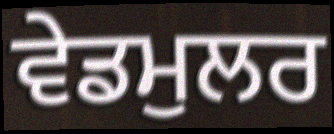
ਵੇਡਮੁਲਰ